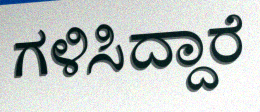
ಗಳಿಸಿದ್ದಾರೆ